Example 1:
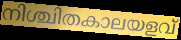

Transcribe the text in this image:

നിശ്ചിതകാലയളവ്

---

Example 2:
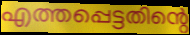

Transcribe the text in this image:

എത്തപ്പെട്ടതിന്റെ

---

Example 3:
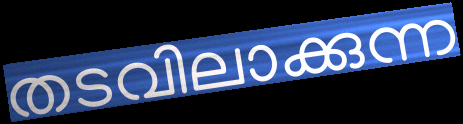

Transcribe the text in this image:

തടവിലാക്കുന്ന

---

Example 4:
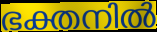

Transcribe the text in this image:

ഭക്തനിൽ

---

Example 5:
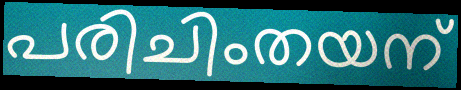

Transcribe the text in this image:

പരിചിംതയന്